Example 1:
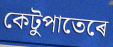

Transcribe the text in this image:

কেটুপাতেৰে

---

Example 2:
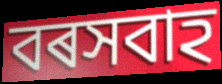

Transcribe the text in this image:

বৰসবাহ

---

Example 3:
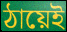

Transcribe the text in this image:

ঠায়েই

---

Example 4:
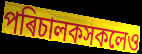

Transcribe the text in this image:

পৰিচালকসকলেও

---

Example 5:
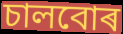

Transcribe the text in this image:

চালবোৰ